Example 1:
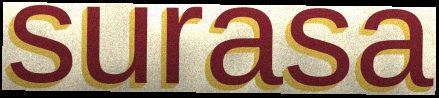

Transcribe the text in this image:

surasa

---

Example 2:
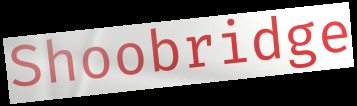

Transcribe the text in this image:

Shoobridge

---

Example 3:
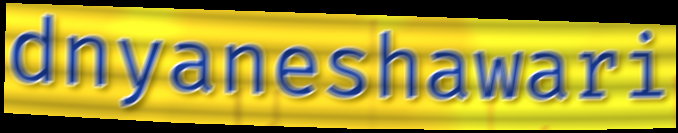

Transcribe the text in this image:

dnyaneshawari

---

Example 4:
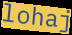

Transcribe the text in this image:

lohaj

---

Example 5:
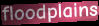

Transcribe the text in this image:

floodplains